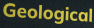
Geological